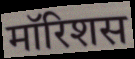
मॉरिशस